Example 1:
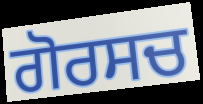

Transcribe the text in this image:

ਗੋਰਸਚ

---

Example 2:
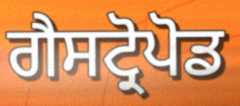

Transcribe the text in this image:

ਗੈਸਟ੍ਰੋਪੋਡ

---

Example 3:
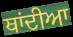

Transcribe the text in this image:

ਥਾਂਦੀਆ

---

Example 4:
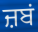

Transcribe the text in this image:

ਜ਼ਬਂ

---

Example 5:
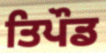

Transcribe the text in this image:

ਤਿਪੌਡ